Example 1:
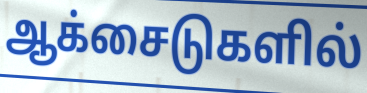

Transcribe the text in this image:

ஆக்சைடுகளில்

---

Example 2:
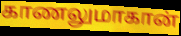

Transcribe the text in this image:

காணலுமாகான்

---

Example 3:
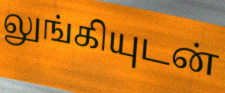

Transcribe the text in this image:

லுங்கியுடன்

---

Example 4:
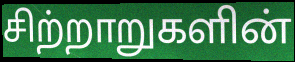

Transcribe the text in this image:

சிற்றாறுகளின்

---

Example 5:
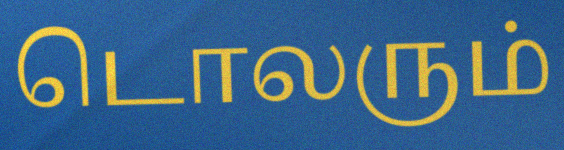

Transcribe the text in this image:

டொலரும்